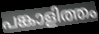
പങ്കാളിത്തം